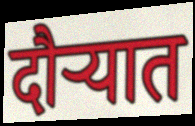
दौर्‍यात